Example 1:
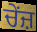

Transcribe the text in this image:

ਚੇਂਜ਼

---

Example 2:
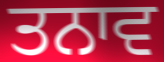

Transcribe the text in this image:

ਤਨਾਵ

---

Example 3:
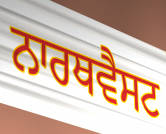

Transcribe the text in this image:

ਨਾਰਥਵੈਸਟ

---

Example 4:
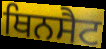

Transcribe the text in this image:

ਥਿਨਸੈਟ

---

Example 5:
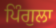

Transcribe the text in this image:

ਪਿੰਗੁਲਾ